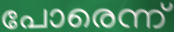
പോരെന്ന്